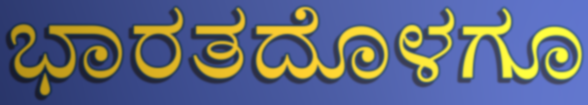
ಭಾರತದೊಳಗೂ